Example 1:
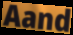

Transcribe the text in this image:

Aand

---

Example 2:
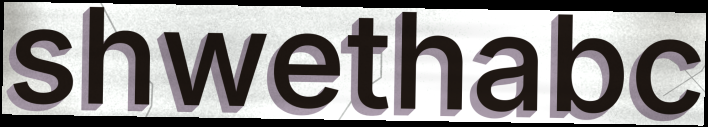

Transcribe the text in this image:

shwethabc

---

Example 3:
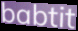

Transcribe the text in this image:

babtit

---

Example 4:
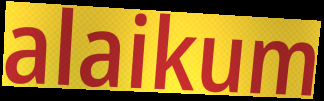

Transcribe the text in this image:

alaikum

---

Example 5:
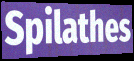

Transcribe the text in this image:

Spilathes